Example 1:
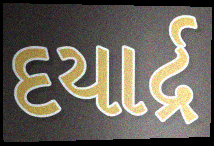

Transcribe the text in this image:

દયાર્દ્ર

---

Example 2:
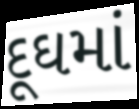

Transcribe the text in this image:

દૂઘમાં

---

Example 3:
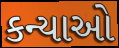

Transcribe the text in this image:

કન્યાઓ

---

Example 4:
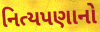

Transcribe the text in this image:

નિત્યપણાનો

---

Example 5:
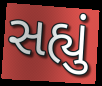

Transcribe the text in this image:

સહ્યું